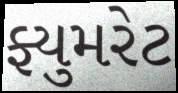
ફ્યુમરેટ